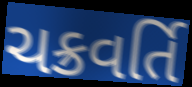
ચક્રવર્તિ